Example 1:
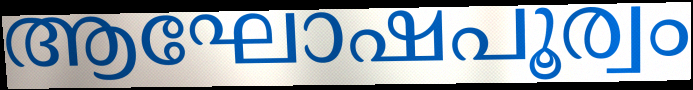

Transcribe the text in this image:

ആഘോഷപൂര്വം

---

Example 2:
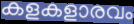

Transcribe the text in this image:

കളകളാരവം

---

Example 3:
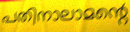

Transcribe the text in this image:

പതിനാലാമന്റെ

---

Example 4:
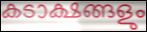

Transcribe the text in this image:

കടാക്ഷങ്ങളും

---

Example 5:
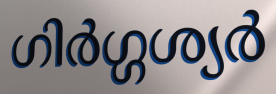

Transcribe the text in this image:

ഗിർഗ്ഗശ്യർ